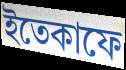
ইতেকাফে